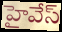
హైవేస్